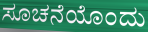
ಸೂಚನೆಯೊಂದು